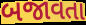
બજાવતા